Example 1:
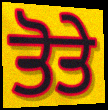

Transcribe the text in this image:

ਤੋਤੇ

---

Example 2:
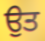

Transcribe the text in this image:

ਉਤ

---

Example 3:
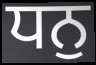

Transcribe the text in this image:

ਧਨੁ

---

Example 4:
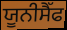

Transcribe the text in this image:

ਯੂਨੀਸੈੱਫ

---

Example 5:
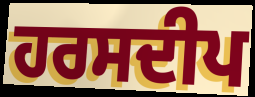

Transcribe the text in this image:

ਹਰਸਦੀਪ